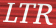
LTR